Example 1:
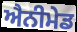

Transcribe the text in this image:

ਐਨੀਮੇਡ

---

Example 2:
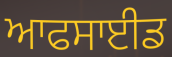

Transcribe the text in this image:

ਆਫਸਾਈਡ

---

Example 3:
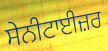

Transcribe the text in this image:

ਸੇਨੀਟਾਈਜ਼ਰ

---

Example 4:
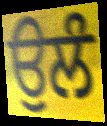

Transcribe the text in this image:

ਉਲੰ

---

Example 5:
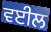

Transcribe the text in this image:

ਵਈਲ